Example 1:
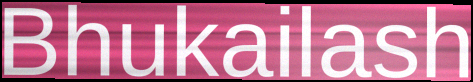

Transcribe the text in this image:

Bhukailash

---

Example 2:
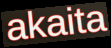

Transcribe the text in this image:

akaita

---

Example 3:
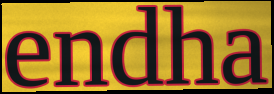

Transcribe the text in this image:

endha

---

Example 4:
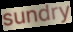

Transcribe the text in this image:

sundry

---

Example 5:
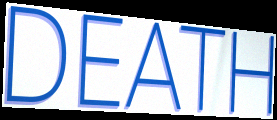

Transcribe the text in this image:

DEATH